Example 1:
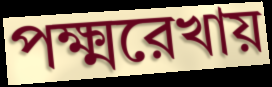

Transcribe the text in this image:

পক্ষ্মরেখায়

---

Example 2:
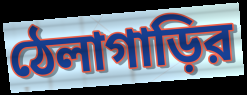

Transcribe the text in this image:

ঠেলাগাড়ির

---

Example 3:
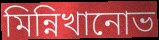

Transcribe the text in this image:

মিন্নিখানোভ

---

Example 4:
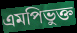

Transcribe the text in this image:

এমপিভুক্ত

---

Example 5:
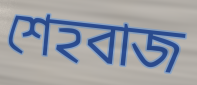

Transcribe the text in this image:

শেহবাজ